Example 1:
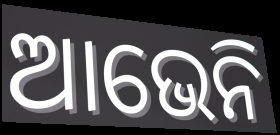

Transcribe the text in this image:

ଆଭେନି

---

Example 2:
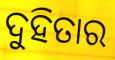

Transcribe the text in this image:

ଦୁହିତାର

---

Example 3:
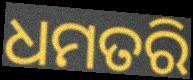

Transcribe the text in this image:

ଧମତରି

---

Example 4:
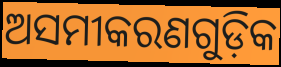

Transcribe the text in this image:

ଅସମୀକରଣଗୁଡ଼ିକ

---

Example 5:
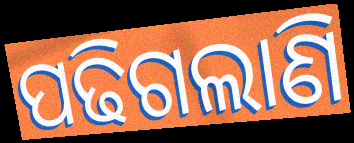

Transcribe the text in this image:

ପଢିଗଲାଣି